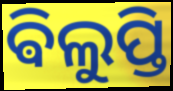
ଵିଲୁପ୍ତି